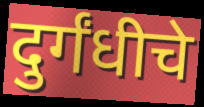
दुर्गंधीचे